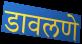
डावलणे